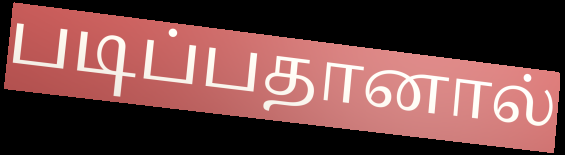
படிப்பதானால்